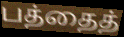
பத்தைத்